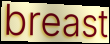
breast